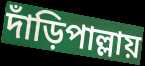
দাঁড়িপাল্লায়